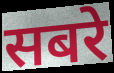
सबरे